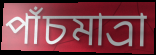
পাঁচমাত্রা